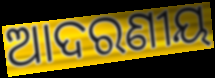
ଆଦରଣୀୟ